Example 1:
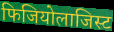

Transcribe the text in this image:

फिजियोलाजिस्ट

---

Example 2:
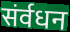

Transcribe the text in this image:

संर्वधन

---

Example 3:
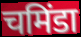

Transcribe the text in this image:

चमिंडा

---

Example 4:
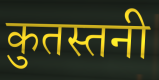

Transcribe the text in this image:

कुतस्तनी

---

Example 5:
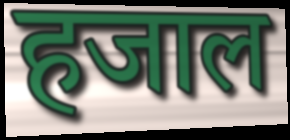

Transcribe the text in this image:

हजाल